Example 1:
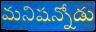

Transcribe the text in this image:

మనిషన్నోడు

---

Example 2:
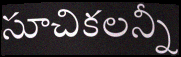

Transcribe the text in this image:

సూచికలన్నీ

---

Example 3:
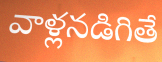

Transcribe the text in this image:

వాళ్లనడిగితే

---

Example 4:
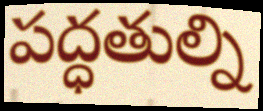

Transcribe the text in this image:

పద్ధతుల్ని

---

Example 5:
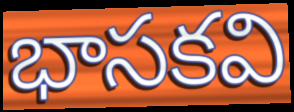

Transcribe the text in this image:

భాసకవి